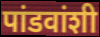
पांडवांशी